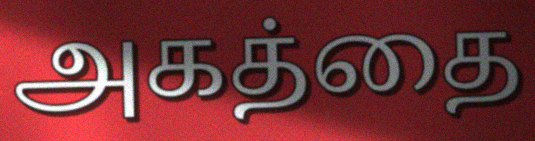
அகத்தை